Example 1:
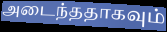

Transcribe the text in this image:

அடைந்ததாகவும்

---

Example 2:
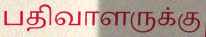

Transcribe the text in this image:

பதிவாளருக்கு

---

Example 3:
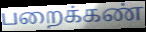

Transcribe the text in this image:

பறைக்கண்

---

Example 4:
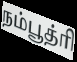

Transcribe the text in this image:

நம்பூத்ரி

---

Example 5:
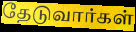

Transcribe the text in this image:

தேடுவார்கள்